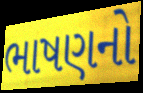
ભાષણનો